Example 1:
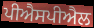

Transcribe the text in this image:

ਪੀਐਸਪੀਐਲ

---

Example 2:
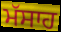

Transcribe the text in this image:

ਮੱਸਾਹ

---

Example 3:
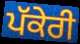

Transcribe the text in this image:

ਪੱਕੇਰੀ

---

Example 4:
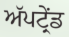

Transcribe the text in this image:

ਅੱਪਟ੍ਰੇਂਡ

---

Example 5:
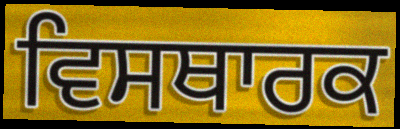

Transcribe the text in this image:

ਵਿਸਥਾਰਕ